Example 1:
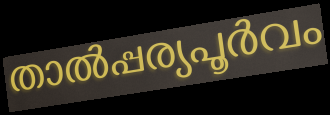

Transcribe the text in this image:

താൽപ്പര്യപൂർവം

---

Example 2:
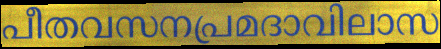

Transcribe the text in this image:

പീതവസനപ്രമദാവിലാസ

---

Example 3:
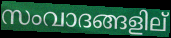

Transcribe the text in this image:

സംവാദങ്ങളില്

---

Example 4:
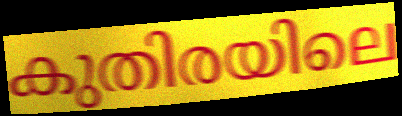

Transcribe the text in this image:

കുതിരയിലെ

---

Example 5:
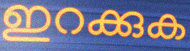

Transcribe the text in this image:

ഇറക്കുക